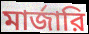
মার্জারি